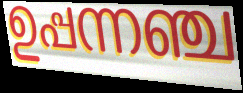
ഉപ്പന്നഞ്ച